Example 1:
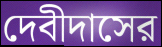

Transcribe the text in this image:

দেবীদাসের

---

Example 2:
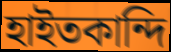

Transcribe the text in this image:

হাইতকান্দি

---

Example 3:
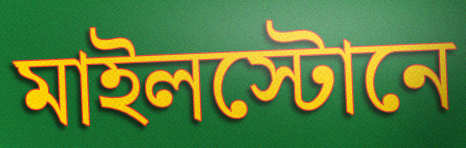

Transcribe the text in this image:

মাইলস্টোনে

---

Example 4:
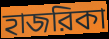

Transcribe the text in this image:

হাজরিকা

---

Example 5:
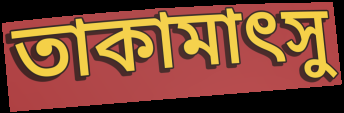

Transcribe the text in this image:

তাকামাৎসু